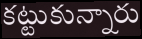
కట్టుకున్నారు